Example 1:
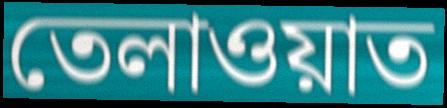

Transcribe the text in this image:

তেলাওয়াত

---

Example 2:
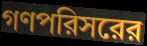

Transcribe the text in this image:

গণপরিসরের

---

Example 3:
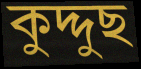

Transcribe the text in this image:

কুদ্দুছ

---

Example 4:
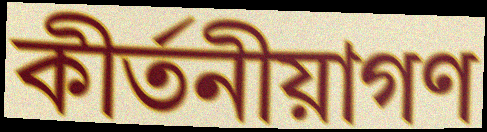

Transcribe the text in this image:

কীর্তনীয়াগণ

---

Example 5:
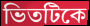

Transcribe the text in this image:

ভিতটিকে